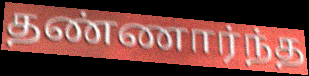
தண்ணார்ந்த